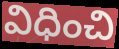
విధించి